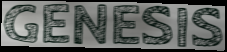
GENESIS